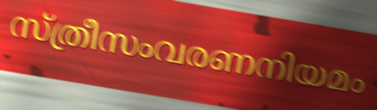
സ്ത്രീസംവരണനിയമം